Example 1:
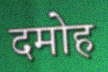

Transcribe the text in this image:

दमोह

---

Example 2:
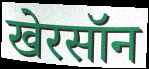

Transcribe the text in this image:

खेरसॉन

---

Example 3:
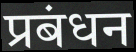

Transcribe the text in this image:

प्रबंधन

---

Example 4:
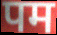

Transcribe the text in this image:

पम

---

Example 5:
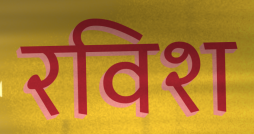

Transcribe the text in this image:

रविश